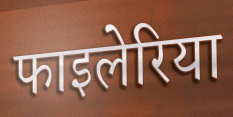
फाइलेरिया